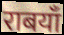
राबयाँ